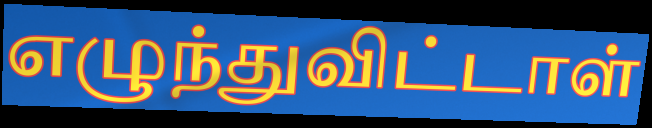
எழுந்துவிட்டாள்